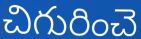
చిగురించె